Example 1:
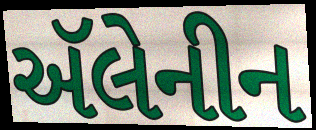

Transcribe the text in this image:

ઍલેનીન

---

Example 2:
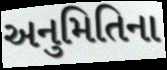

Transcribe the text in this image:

અનુમિતિના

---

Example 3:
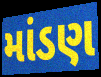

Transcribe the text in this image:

માંડણ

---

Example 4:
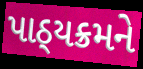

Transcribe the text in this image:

પાઠ્યક્રમને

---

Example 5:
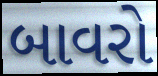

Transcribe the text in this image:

બાવરો